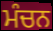
ਮੰਚਨ